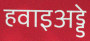
हवाइअड्डे